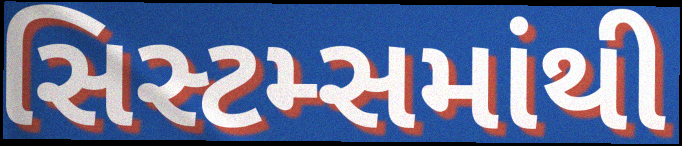
સિસ્ટમ્સમાંથી